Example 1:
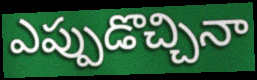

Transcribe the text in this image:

ఎప్పుడొచ్చినా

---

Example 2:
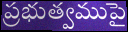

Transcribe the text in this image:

ప్రభుత్వముపై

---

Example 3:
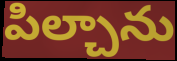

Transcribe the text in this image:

పిల్చాను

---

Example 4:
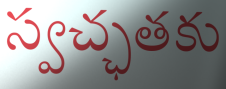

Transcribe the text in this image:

స్వచ్ఛతకు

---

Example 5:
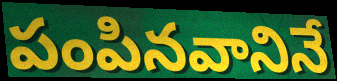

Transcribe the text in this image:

పంపినవానినే